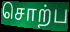
சொற்ப